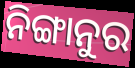
ନିଙ୍ଗାନୁର